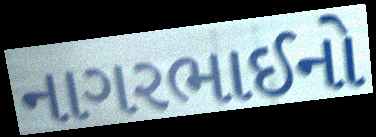
નાગરભાઈનો